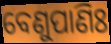
ବେଣୁପାଣିଃ